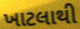
ખાટલાથી